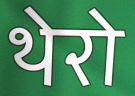
थेरो